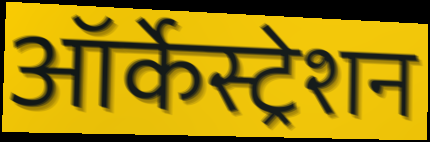
ऑर्केस्ट्रेशन